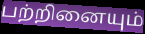
பற்றினையும்